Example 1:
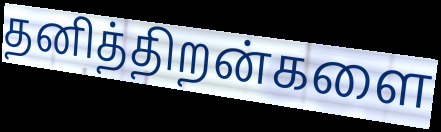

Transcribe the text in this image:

தனித்திறன்களை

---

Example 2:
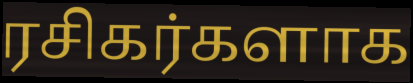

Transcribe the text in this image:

ரசிகர்களாக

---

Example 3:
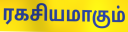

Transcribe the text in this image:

ரகசியமாகும்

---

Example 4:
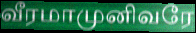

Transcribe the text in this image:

வீரமாமுனிவரே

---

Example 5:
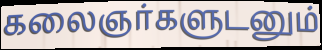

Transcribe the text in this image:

கலைஞர்களுடனும்